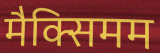
मैक्सिमम